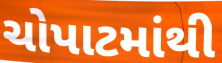
ચોપાટમાંથી